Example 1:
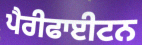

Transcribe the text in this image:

ਪੈਰੀਫਾਈਟਨ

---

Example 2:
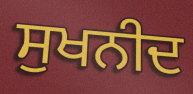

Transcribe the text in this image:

ਸੁਖਨੀਦ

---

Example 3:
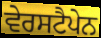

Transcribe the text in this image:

ਵੇਰਸਟੈਪੇਨ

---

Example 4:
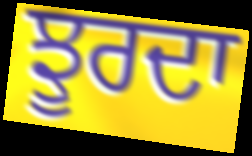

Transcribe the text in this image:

ਝੂਰਦਾ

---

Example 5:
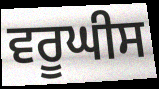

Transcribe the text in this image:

ਵਰੂਘੀਸ